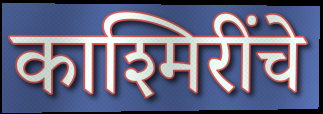
काश्मिरींचे